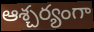
ఆశ్చర్యంగా